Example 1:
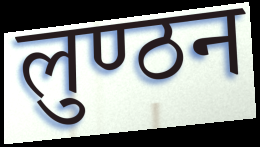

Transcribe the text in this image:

लुण्ठन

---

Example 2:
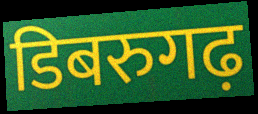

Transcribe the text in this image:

डिबरुगढ़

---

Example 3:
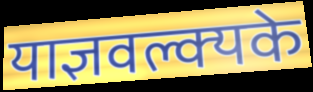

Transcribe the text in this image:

याज्ञवल्क्यके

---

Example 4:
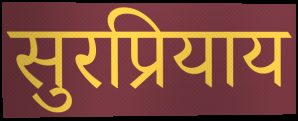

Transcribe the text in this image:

सुरप्रियाय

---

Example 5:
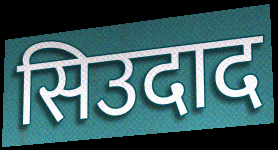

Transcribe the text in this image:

सिउदाद